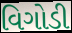
વિગોડી